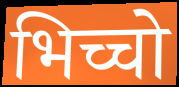
भिच्चो